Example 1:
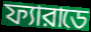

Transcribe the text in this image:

ফ্যারাডে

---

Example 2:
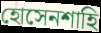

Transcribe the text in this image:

হোসেনশাহি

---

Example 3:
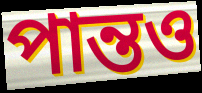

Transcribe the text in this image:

পান্তও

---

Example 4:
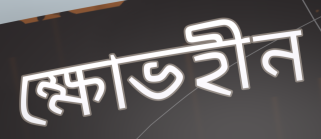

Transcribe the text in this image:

ক্ষোভহীন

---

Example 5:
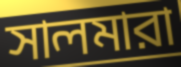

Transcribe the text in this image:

সালমারা